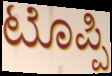
ಟೊಪ್ಪಿ